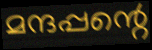
മന്ദപ്പന്റെ